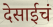
देसाईचं